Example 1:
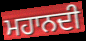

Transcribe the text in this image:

ਮਹਾਨਦੀ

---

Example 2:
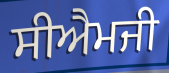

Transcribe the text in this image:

ਸੀਐਮਜੀ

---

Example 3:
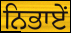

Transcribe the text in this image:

ਨਿਭਾਏਂ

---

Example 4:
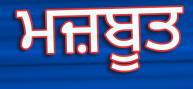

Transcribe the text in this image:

ਮਜ਼ਬੂਤ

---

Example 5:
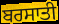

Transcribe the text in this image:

ਬਰਸਾਤੀ